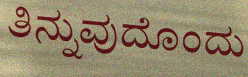
ತಿನ್ನುವುದೊಂದು